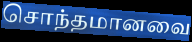
சொந்தமானவை